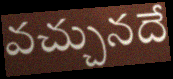
వచ్చునదే